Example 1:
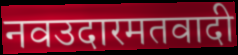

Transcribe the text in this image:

नवउदारमतवादी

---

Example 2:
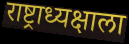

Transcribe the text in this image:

राष्ट्राध्यक्षाला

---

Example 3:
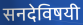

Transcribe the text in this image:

सनदेविषयी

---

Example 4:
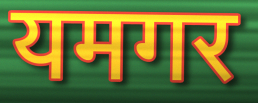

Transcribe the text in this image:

यमगर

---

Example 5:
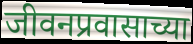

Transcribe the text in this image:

जीवनप्रवासाच्या